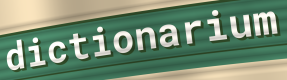
dictionarium